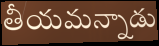
తీయమన్నాడు